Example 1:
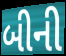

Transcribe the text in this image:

બીની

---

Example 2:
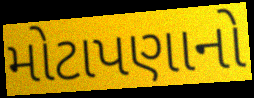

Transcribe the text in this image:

મોટાપણાનો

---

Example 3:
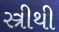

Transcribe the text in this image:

સ્ત્રીથી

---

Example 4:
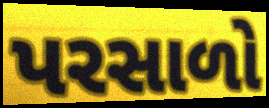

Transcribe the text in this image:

પરસાળો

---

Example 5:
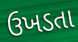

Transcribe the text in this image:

ઉખડતા